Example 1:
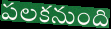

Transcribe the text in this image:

పలకనుంది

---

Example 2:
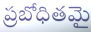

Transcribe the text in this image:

ప్రబోధితమై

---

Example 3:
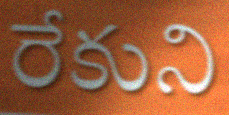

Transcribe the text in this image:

రేకుని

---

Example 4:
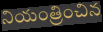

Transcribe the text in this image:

నియంత్రించిన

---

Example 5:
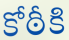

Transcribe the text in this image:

కోఠీకి